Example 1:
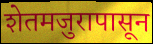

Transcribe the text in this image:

शेतमजुरापासून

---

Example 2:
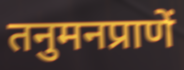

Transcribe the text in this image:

तनुमनप्राणें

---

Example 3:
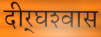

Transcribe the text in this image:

दीर्घश्वास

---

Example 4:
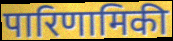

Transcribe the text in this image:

पारिणामिकी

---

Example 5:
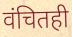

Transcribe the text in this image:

वंचितही